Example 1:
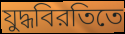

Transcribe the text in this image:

যুদ্ধবিরতিতে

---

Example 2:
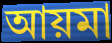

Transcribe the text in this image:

আয়মা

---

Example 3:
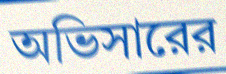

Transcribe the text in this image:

অভিসারের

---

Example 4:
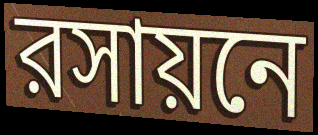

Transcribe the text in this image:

রসায়নে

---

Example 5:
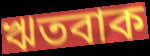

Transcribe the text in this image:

ঋতবাক